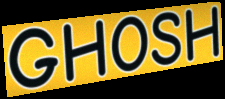
GHOSH